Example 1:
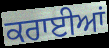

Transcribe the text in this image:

ਕਰਾਈਆਂ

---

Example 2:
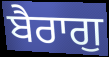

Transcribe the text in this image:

ਬੈਰਾਗੁ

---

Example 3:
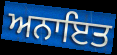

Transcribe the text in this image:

ਅਨਾਇਤ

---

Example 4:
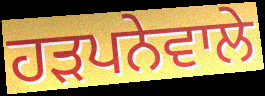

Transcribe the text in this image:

ਹੜਪਨੇਵਾਲੇ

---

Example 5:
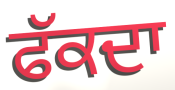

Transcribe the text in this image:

ਫੱਕਦਾ